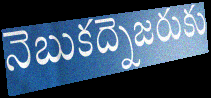
నెబుకద్నెజరుకు